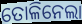
ତୋଳିନେଲା